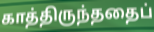
காத்திருந்ததைப்